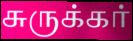
சுருக்கர்